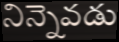
నిన్నెవడు